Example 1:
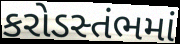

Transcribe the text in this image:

કરોડસ્તંભમાં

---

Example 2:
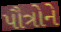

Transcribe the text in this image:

પૌત્રોને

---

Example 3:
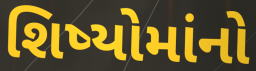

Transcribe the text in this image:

શિષ્યોમાંનો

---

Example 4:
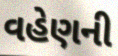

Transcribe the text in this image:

વહેણની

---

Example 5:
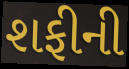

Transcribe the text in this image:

શફીની